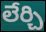
లేర్చి